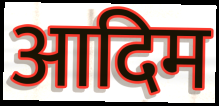
आदिम